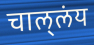
चाल्लंय